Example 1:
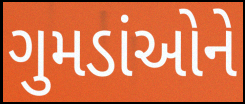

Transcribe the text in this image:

ગુમડાંઓને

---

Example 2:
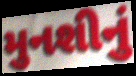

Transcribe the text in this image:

મુનશીનું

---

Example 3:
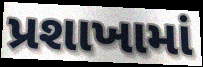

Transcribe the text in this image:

પ્રશાખામાં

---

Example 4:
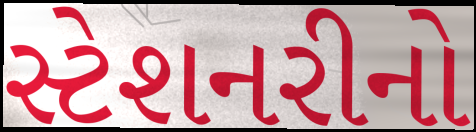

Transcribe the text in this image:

સ્ટેશનરીનો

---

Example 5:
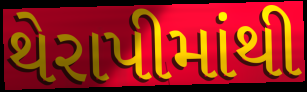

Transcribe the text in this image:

થેરાપીમાંથી